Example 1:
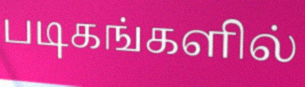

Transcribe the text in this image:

படிகங்களில்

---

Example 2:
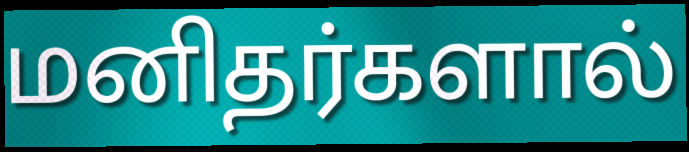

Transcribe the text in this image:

மனிதர்களால்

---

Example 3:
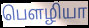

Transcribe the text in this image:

பௌழியா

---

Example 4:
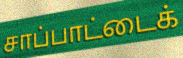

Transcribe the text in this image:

சாப்பாட்டைக்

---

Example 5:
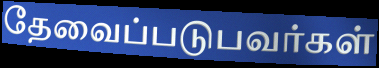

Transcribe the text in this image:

தேவைப்படுபவர்கள்